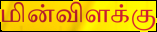
மின்விளக்கு